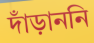
দাঁড়াননি